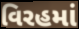
વિરહમાં